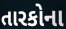
તારકોના